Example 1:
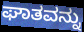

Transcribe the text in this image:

ಘಾತವನ್ನು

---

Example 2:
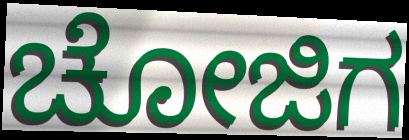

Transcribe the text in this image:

ಚೋಜಿಗ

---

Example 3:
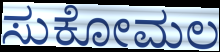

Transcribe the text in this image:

ಸುಕೋಮಲ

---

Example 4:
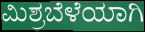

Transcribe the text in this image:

ಮಿಶ್ರಬೆಳೆಯಾಗಿ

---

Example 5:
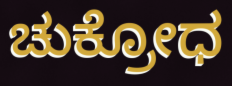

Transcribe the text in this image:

ಚುಕ್ರೋಧ